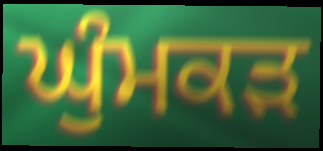
ਘੁੰਮਕੜ